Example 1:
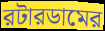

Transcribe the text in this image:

রটারডামের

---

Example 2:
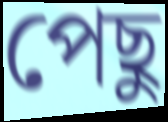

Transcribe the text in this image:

পেছু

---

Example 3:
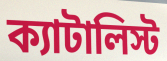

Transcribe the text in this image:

ক্যাটালিস্ট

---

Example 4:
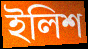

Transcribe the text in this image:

ইলিশ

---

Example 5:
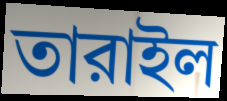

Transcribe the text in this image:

তারাইল